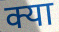
क्या